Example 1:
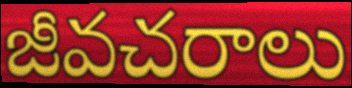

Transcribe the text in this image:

జీవచరాలు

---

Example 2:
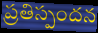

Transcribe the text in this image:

ప్రతిస్పందన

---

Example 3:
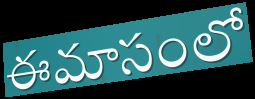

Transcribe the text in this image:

ఈమాసంలో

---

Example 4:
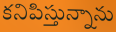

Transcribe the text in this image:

కనిపిస్తున్నాను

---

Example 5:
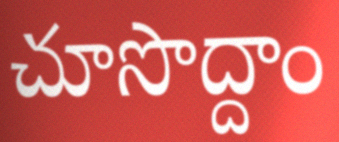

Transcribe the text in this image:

చూసొద్దాం